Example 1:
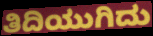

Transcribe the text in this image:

ತಿದಿಯುಗಿದು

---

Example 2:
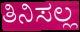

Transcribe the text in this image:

ತಿನಿಸಲ್ಲ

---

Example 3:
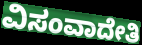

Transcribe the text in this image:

ವಿಸಂವಾದೇತಿ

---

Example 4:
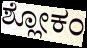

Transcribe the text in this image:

ಶ್ಲೋಕಂ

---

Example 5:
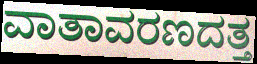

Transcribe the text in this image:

ವಾತಾವರಣದತ್ತ